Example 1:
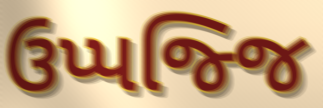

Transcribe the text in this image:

ઉપ્પજ્જિ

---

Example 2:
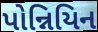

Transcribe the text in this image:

પોન્નિયિન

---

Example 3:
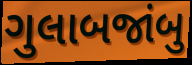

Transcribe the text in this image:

ગુલાબજાંબુ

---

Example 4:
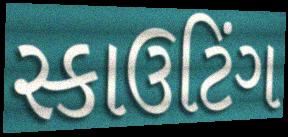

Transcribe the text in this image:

સ્કાઉટિંગ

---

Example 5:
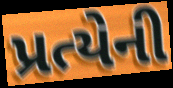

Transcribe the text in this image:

પ્રત્યેની